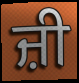
ਜ਼ੀ